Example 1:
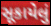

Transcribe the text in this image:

સૂકાયેલું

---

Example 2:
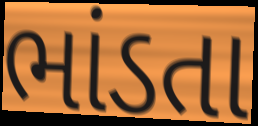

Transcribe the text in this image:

ભાંડતા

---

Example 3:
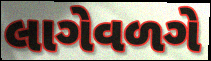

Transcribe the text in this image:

લાગેવળગે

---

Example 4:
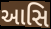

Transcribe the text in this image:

આસિ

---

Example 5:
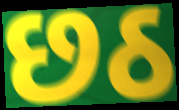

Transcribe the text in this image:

છઠ